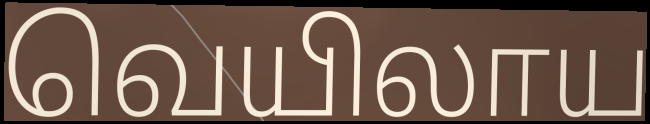
வெயிலாய